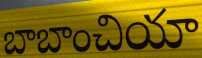
బాబాంచియా